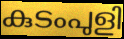
കുടംപുളി